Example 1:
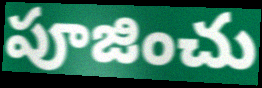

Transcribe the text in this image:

పూజించు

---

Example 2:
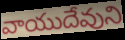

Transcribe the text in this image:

వాయుదేవుని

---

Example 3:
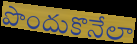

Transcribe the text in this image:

పొందుకొనేలా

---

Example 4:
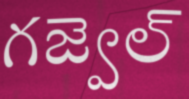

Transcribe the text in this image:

గజ్వెల్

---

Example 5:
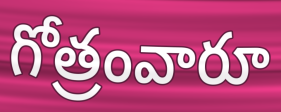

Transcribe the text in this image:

గోత్రంవారూ